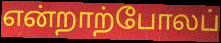
என்றாற்போலப்